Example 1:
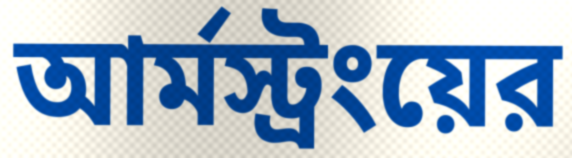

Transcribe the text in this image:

আর্মস্ট্রংয়ের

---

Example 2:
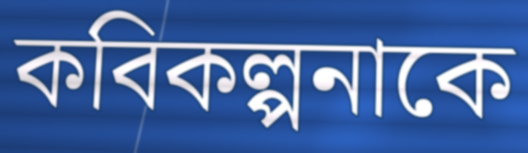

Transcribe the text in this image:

কবিকল্পনাকে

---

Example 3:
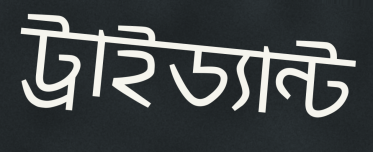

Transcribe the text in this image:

ট্রাইড্যান্ট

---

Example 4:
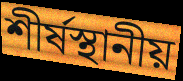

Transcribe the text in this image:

শীর্ষস্থানীয়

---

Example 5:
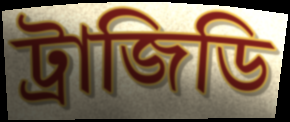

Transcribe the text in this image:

ট্রাজিডি